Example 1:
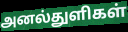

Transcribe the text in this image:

அனல்துளிகள்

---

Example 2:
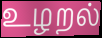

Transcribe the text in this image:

உழறல்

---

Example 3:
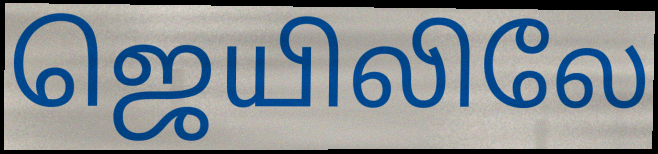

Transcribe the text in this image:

ஜெயிலிலே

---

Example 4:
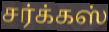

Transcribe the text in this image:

சர்க்கஸ்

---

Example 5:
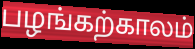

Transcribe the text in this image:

பழங்கற்காலம்